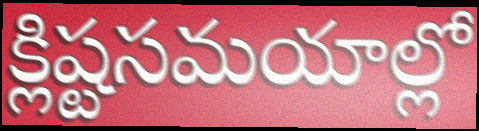
క్లిష్టసమయాల్లో